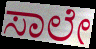
ಸಾಲೇ